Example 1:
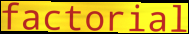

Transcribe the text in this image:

factorial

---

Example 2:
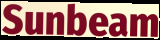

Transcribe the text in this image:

Sunbeam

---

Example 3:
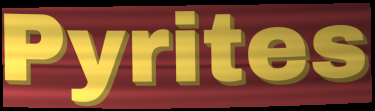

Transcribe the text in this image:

Pyrites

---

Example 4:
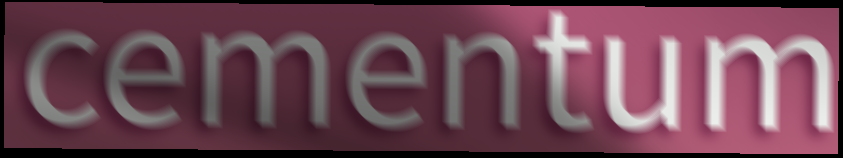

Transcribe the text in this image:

cementum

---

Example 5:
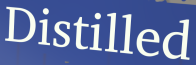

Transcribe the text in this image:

Distilled